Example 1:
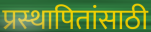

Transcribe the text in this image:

प्रस्थापितांसाठी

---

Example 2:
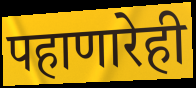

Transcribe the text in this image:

पहाणारेही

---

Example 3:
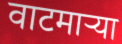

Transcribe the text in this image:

वाटमाऱ्या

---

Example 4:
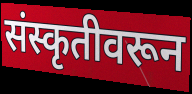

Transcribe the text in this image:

संस्कृतीवरून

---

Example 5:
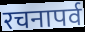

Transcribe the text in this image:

रचनापर्व